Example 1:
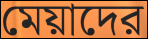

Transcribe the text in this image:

মেয়াদের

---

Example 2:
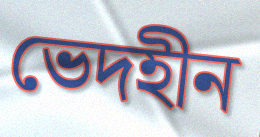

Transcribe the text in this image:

ভেদহীন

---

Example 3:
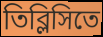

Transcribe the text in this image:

তিব্লিসিতে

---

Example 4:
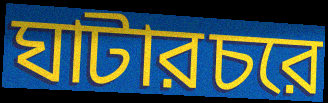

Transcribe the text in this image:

ঘাটারচরে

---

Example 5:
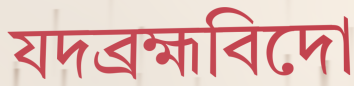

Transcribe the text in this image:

যদব্রহ্মবিদো